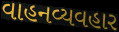
વાહનવ્યવહાર